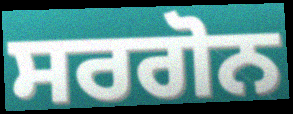
ਸਰਗੋਨ